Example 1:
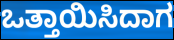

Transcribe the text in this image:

ಒತ್ತಾಯಿಸಿದಾಗ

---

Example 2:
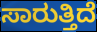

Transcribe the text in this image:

ಸಾರುತ್ತಿದೆ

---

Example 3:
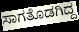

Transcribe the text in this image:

ಸಾಗತೊಡಗಿದ್ದ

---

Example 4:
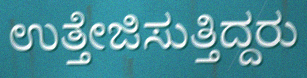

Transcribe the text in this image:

ಉತ್ತೇಜಿಸುತ್ತಿದ್ದರು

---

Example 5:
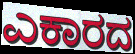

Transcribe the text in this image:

ಎಕಾರದ